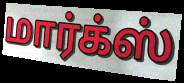
மார்க்ஸ்